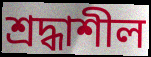
শ্ৰদ্ধাশীল